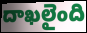
దాఖలైంది